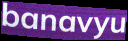
banavyu